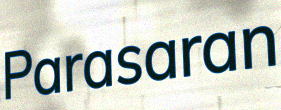
Parasaran